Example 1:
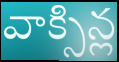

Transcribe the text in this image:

వాక్సిన్ల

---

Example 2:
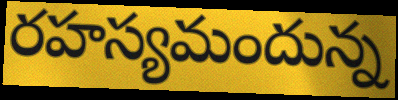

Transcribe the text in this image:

రహస్యమందున్న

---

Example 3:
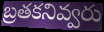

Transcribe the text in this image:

బ్రతకనివ్వరు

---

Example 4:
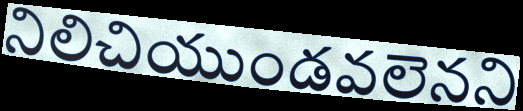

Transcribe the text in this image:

నిలిచియుండవలెనని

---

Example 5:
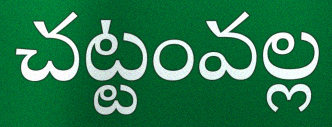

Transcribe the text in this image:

చట్టంవల్ల